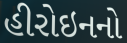
હીરોઇનનો